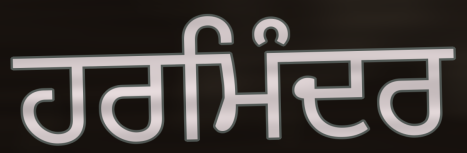
ਹਰਮਿੰਦਰ